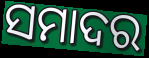
ସମାଦର